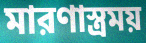
মারণাস্ত্রময়